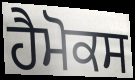
ਹੈਮੋਕਸ